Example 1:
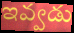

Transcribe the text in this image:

ఇవ్వడు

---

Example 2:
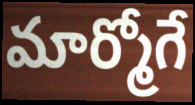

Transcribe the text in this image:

మార్మోగే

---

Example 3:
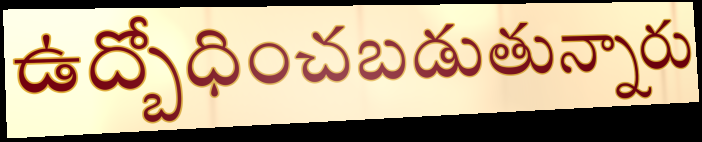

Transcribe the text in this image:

ఉద్బోధించబడుతున్నారు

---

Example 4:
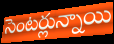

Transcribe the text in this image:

సెంటర్లున్నాయి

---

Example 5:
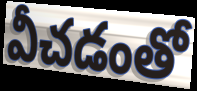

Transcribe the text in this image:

వీచడంతో